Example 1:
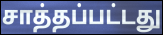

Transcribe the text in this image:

சாத்தப்பட்டது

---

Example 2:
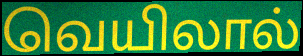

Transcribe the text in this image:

வெயிலால்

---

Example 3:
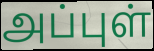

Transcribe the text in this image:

அப்புள்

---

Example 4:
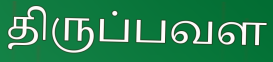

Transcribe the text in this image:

திருப்பவள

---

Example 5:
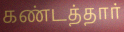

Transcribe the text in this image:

கண்டத்தார்